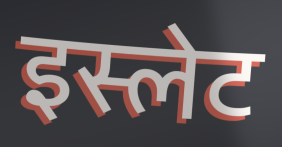
इस्लेट